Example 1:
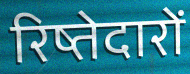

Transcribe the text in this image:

रिष्तेदारों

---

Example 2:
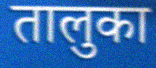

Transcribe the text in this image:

तालुका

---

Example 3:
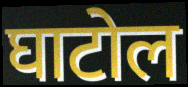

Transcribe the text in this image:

घाटोल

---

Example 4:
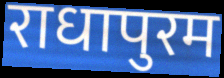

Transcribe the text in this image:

राधापुरम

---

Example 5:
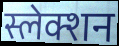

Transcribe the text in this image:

स्लेक्शन